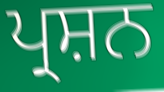
ਪ੍ਰਸ਼ਨ